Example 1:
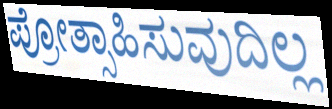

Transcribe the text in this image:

ಪ್ರೋತ್ಸಾಹಿಸುವುದಿಲ್ಲ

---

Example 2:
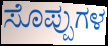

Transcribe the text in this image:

ಸೊಪ್ಪುಗಳ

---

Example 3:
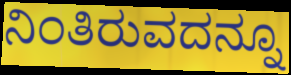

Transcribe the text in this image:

ನಿಂತಿರುವದನ್ನೂ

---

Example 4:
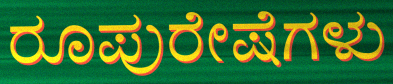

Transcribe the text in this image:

ರೂಪುರೇಷೆಗಳು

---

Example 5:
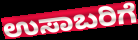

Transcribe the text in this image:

ಉಸಾಬರಿಗೆ